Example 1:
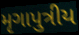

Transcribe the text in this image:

મૃગાપુત્રીય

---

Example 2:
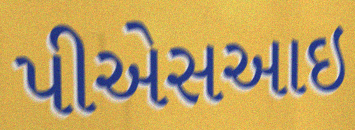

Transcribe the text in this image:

પીએસઆઇ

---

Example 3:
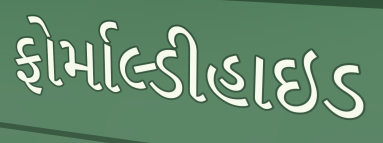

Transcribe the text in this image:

ફોર્માલ્ડીહાઇડ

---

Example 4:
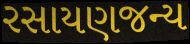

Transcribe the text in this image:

રસાયણજન્ય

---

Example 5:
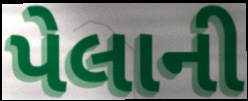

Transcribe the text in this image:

પેલાની